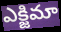
ఎక్జిమా